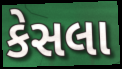
કેસલા